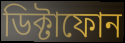
ডিক্টাফোন